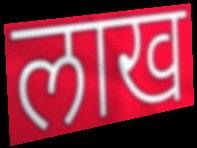
लाख